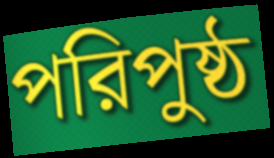
পরিপুষ্ঠ